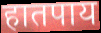
हातपाय